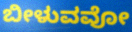
ಬೀಳುವವೋ